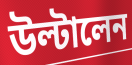
উল্টালেন